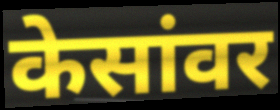
केसांवर